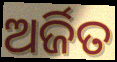
ଅର୍ଜିତ